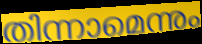
തിന്നാമെന്നും